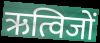
ऋत्विजों